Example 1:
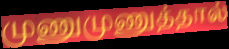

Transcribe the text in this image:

முணுமுணுத்தால்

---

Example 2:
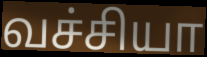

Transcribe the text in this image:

வச்சியா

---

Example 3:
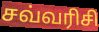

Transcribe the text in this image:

சவ்வரிசி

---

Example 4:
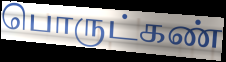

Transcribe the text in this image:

பொருட்கண்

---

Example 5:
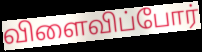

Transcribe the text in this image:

விளைவிப்போர்